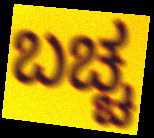
ಬಚ್ಚ